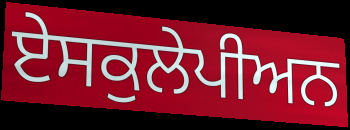
ਏਸਕੁਲੇਪੀਅਨ